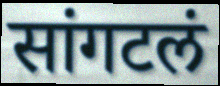
सांगटलं